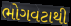
ભોગવટાથી